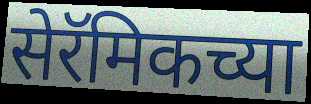
सेरॅमिकच्या